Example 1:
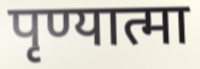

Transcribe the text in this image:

पृण्यात्मा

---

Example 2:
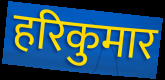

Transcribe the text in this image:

हरिकुमार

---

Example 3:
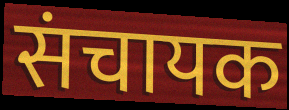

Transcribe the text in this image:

संचायक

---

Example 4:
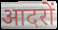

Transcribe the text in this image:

आदरों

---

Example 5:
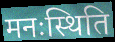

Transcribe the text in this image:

मनःस्थिति